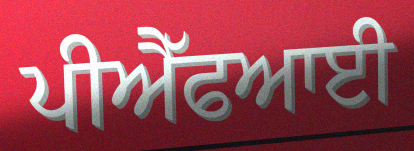
ਪੀਐੱਫਆਈ